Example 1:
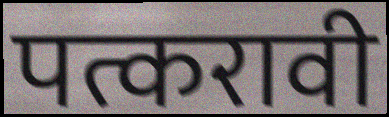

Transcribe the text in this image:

पत्करावी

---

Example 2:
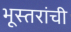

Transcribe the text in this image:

भूस्तरांची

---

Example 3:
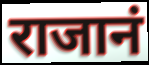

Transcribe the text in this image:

राजानं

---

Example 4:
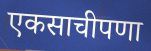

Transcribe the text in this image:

एकसाचीपणा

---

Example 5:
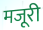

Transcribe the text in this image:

मजूरी